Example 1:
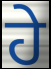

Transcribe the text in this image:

ਹੇ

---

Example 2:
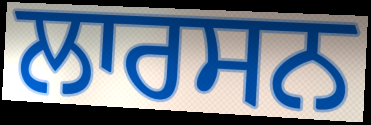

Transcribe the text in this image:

ਲਾਰਸਨ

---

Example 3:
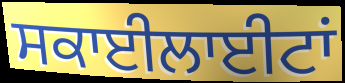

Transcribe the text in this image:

ਸਕਾਈਲਾਈਟਾਂ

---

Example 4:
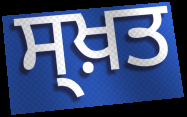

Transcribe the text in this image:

ਸ੍ਖ਼ਤ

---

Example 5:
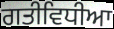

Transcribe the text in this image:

ਗਤੀਵਿਧੀਆ